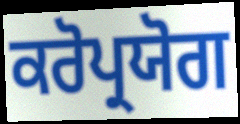
ਕਰੋਪ੍ਰਯੋਗ